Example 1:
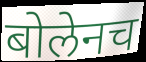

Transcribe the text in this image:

बोलेनच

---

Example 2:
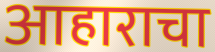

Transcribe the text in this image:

आहाराचा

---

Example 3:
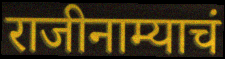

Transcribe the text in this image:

राजीनाम्याचं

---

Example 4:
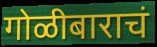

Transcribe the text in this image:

गोळीबाराचं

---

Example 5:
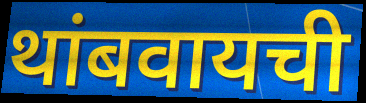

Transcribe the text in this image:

थांबवायची